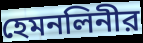
হেমনলিনীর